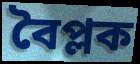
বৈপ্লক